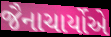
જૈનાચાર્યોએ